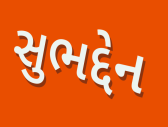
સુભદ્દેન